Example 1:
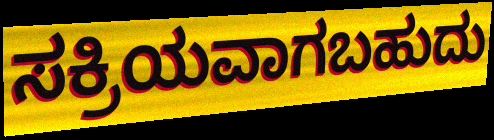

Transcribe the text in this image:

ಸಕ್ರಿಯವಾಗಬಹುದು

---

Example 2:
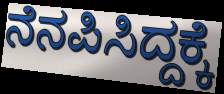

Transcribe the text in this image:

ನೆನಪಿಸಿದ್ದಕ್ಕೆ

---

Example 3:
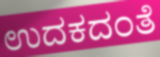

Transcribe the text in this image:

ಉದಕದಂತೆ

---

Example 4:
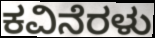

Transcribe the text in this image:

ಕವಿನೆರಳು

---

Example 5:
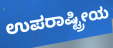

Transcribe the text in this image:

ಉಪರಾಷ್ಟ್ರೀಯ